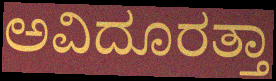
ಅವಿದೂರತ್ತಾ